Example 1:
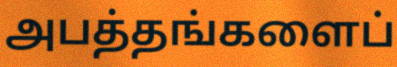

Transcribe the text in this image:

அபத்தங்களைப்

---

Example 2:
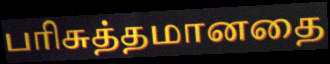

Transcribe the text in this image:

பரிசுத்தமானதை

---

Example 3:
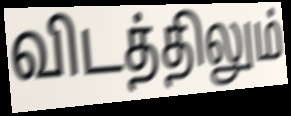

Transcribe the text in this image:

விடத்திலும்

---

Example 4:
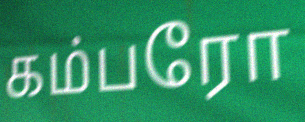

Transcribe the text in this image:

கம்பரோ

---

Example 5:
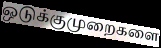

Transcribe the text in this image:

ஒடுக்குமுறைகளை